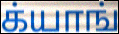
க்யாங்